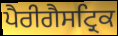
ਪੈਰੀਗੈਸਟ੍ਰਿਕ